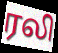
ரலி